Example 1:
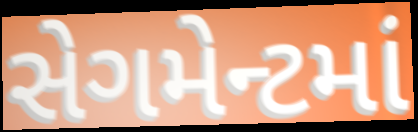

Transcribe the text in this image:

સેગમેન્ટમાં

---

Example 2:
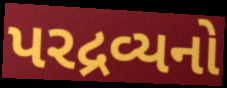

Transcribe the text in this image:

પરદ્રવ્યનો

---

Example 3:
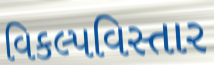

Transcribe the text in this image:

વિકલ્પવિસ્તાર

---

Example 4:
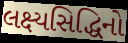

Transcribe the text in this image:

લક્ષ્યસિદ્ધિનો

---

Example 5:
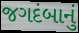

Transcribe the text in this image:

જગદંબાનું